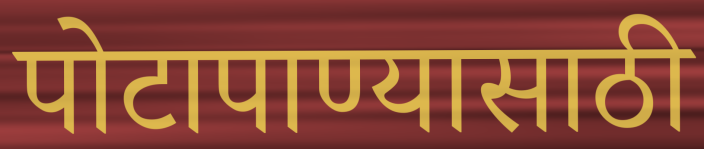
पोटापाण्यासाठी